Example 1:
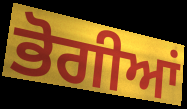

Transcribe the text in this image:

ਭੋਗੀਆਂ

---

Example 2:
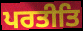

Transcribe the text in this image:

ਪਰਤੀਤਿ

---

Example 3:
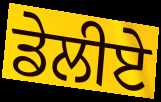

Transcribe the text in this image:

ਡੇਲੀਏ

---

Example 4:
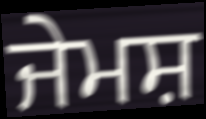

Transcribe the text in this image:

ਜੇਮਸ਼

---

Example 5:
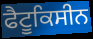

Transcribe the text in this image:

ਫੈਟੂਕਿਸੀਨ